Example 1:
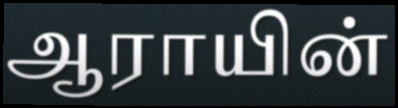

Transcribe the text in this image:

ஆராயின்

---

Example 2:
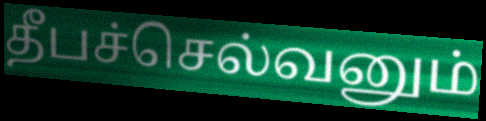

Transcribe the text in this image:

தீபச்செல்வனும்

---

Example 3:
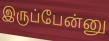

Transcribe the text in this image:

இருப்பேன்னு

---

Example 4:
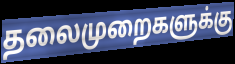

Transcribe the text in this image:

தலைமுறைகளுக்கு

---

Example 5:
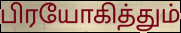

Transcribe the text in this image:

பிரயோகித்தும்